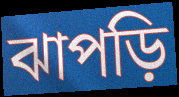
ঝাপড়ি